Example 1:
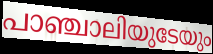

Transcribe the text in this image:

പാഞ്ചാലിയുടേയും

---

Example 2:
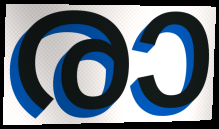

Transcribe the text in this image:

രാ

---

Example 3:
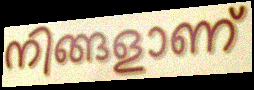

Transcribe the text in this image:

നിങ്ങളാണ്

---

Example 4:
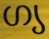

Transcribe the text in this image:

ഗ്യ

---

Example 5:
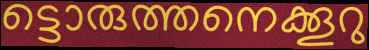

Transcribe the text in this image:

ട്ടൊരുത്തനെക്കൂറു